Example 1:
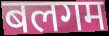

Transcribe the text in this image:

बलगम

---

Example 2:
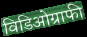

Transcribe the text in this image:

विडिओग्राफी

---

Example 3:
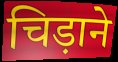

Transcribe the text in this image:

चिड़ाने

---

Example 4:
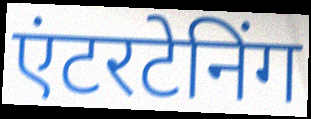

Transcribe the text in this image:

एंटरटेनिंग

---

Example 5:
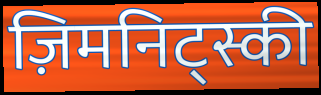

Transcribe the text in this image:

ज़िमनिट्स्की